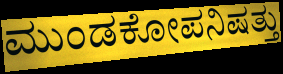
ಮುಂಡಕೋಪನಿಷತ್ತು